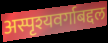
अस्पृश्यवर्गाबद्दल